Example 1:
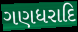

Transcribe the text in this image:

ગણધરાદિ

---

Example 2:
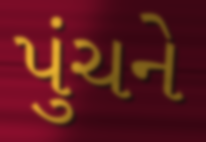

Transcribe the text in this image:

પુંચને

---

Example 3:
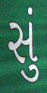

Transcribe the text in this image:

સું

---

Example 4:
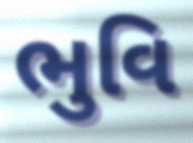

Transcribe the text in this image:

ભુવિ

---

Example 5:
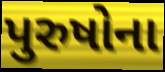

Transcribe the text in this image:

પુરુષોના